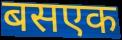
बसएक